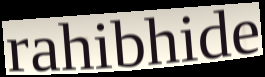
rahibhide